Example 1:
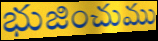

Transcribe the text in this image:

భుజించుము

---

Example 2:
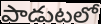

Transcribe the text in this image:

పాడుటలో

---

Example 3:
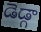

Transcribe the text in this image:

డెడ్గా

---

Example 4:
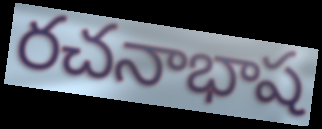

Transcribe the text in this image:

రచనాభాష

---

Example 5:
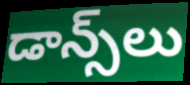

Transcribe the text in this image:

డాన్స్‌లు